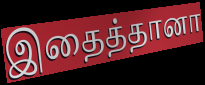
இதைத்தானா